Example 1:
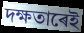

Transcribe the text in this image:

দক্ষতাৰেই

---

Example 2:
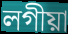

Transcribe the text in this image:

লগীয়া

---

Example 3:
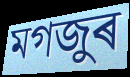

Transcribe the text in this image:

মগজুৰ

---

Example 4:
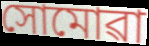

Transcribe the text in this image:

সোমোৱা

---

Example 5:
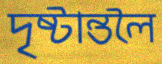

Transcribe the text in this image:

দৃষ্টান্তলৈ